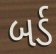
બર્ડ